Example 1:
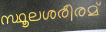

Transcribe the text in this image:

സ്ഥൂലശരീരമ്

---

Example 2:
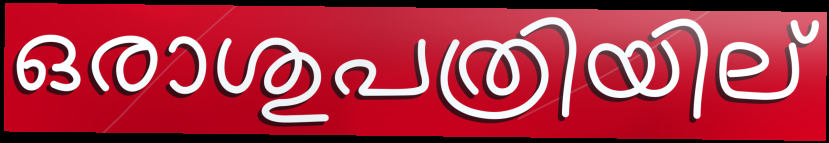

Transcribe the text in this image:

ഒരാശുപത്രിയില്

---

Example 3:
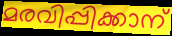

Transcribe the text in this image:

മരവിപ്പിക്കാന്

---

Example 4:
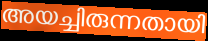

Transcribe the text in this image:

അയച്ചിരുന്നതായി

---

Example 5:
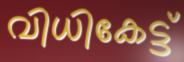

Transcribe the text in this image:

വിധികേട്ട്